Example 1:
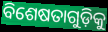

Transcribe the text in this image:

ବିଶେଷତାଗୁଡ଼ିକୁ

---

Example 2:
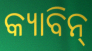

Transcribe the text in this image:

କ୍ୟାବିନ୍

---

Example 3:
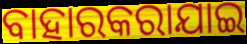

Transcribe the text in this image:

ବାହାରକରାଯାଇ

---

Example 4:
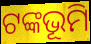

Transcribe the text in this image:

ଟଙ୍କଭୂମି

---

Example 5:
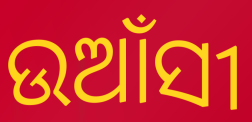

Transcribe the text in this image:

ଉଆଁସୀ